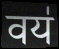
वय॑